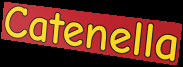
Catenella